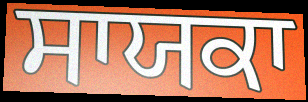
ਸਾਯਕਾ